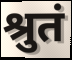
श्रुतं